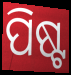
ପିଷ୍ଟ